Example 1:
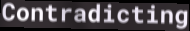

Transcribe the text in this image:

Contradicting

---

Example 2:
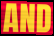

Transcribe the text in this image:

AND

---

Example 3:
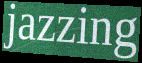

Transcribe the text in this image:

jazzing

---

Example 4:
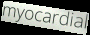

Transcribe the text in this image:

myocardial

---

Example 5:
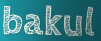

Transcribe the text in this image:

bakul